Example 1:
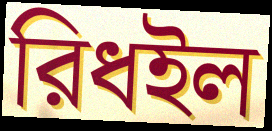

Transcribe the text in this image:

রিধইল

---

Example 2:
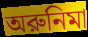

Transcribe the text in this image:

অরুনিমা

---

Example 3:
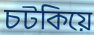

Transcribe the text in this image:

চটকিয়ে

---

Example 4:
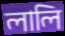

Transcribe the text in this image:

লালি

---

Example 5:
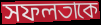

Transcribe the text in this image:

সফলতাকে